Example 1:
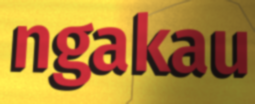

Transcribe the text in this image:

ngakau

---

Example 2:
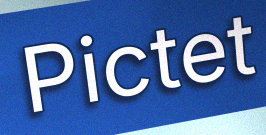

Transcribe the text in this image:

Pictet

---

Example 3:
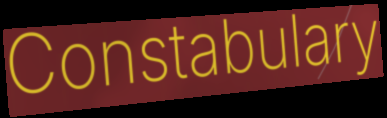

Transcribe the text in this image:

Constabulary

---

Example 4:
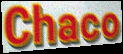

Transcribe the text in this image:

Chaco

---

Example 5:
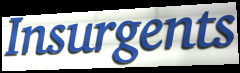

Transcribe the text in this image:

Insurgents